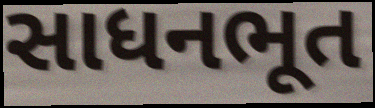
સાધનભૂત